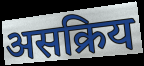
असक्रिय